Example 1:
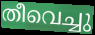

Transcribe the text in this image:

തീവെച്ചു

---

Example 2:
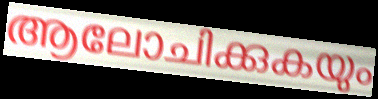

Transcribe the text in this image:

ആലോചിക്കുകയും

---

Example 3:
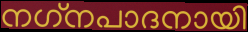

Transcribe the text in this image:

നഗ്‌നപാദനായി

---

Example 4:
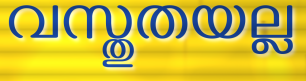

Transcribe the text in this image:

വസ്തുതയല്ല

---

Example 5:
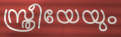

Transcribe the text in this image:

സ്ത്രീയേയും